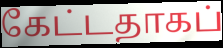
கேட்டதாகப்